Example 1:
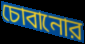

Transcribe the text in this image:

চোবানোর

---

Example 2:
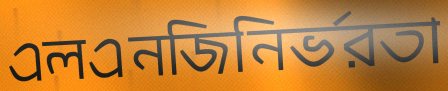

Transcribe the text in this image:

এলএনজিনির্ভরতা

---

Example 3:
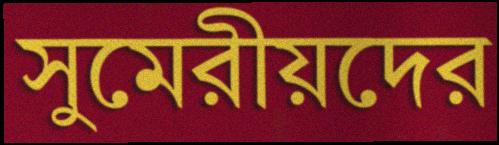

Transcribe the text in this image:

সুমেরীয়দের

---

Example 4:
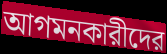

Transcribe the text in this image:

আগমনকারীদের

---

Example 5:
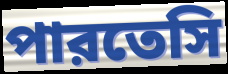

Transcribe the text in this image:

পারতেসি